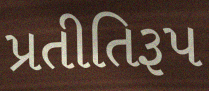
પ્રતીતિરૂપ